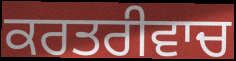
ਕਰਤਰੀਵਾਚ